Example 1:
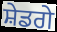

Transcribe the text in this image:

ਸ਼ੇਡਗੇ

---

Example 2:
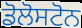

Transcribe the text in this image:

ਡੋਲੋਸਟੋਨ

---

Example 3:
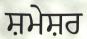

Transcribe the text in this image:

ਸ਼ਮੇਸ਼ਰ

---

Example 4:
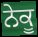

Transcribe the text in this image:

ਨੇਕੂ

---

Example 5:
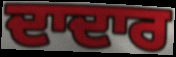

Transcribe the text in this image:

ਦਾਦਾਰ